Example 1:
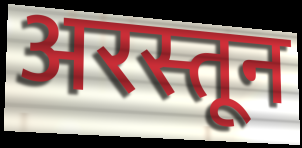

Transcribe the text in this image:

अरस्तून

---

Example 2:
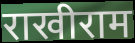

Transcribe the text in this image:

राखीराम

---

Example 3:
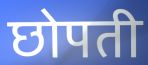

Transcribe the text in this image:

छोपती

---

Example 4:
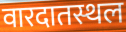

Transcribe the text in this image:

वारदातस्थल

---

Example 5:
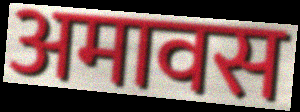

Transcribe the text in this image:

अमावस